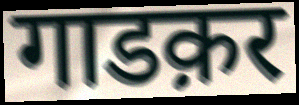
गाडक़र